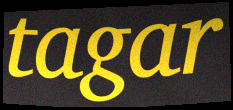
tagar